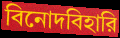
বিনোদবিহারি